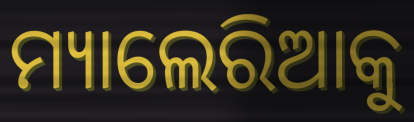
ମ୍ୟାଲେରିଆକୁ